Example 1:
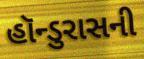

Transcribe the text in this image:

હૉન્ડુરાસની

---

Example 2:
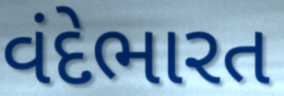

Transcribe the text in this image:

વંદેભારત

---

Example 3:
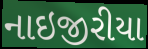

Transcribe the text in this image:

નાઇજીરીયા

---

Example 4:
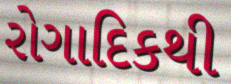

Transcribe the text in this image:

રોગાદિકથી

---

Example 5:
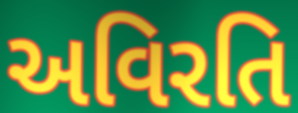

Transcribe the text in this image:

અવિરતિ